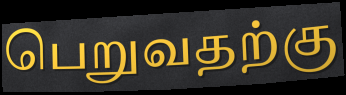
பெறுவதற்கு